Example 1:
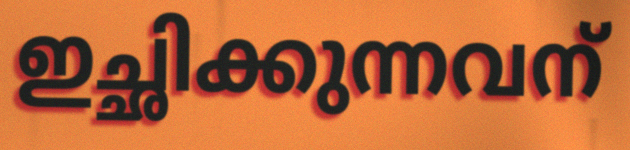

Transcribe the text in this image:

ഇച്ഛിക്കുന്നവന്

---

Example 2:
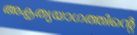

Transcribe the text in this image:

അകൃത്യയാഗത്തിന്റെ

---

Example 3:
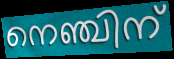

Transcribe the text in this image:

നെഞ്ചിന്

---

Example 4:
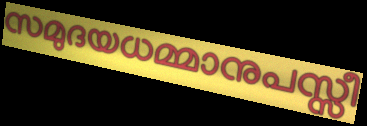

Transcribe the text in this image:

സമുദയധമ്മാനുപസ്സീ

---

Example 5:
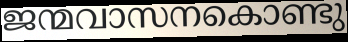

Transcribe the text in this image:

ജന്മവാസനകൊണ്ടു